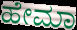
ಹೇಮಾ